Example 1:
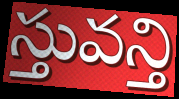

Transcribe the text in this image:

స్తువన్తి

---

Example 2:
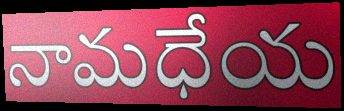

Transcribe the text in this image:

నామధేయ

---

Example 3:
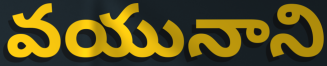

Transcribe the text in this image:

వయునాని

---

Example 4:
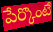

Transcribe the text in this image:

పేర్కొంటే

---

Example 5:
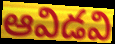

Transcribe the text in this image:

ఆవిడవి